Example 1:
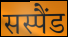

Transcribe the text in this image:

सस्पैंड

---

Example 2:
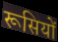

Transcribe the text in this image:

रूसियों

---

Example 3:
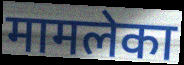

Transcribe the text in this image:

मामलेका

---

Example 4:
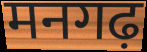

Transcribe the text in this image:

मनगढ़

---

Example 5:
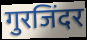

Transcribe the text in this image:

गुरजिंदर